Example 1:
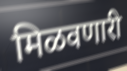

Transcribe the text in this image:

मिळवणारी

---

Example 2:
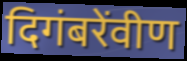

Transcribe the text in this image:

दिगंबरेंवीण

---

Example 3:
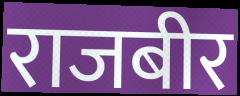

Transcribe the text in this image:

राजबीर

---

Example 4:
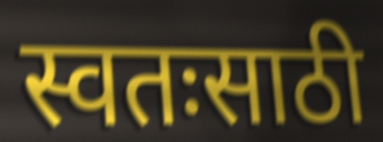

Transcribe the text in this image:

स्वतःसाठी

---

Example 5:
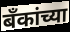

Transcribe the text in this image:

बॅंकांच्या